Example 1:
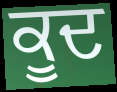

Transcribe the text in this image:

ਕੂਦ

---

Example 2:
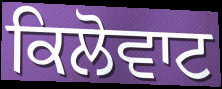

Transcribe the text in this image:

ਕਿਲੋਵਾਟ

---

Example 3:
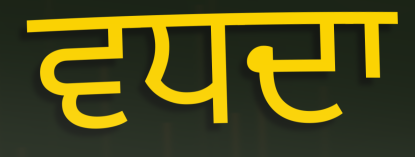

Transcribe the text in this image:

ਵਧਦਾ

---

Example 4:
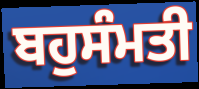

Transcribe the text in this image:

ਬਹੁਸੰਮਤੀ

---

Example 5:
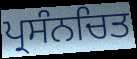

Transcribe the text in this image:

ਪ੍ਰਸੰਨਚਿਤ